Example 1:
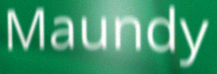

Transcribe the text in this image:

Maundy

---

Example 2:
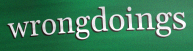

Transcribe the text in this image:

wrongdoings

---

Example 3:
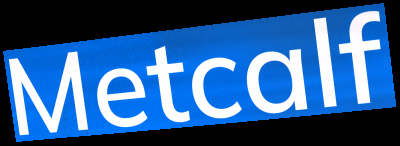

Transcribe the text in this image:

Metcalf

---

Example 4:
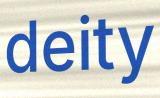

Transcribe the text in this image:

deity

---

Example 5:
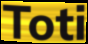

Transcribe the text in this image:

Toti